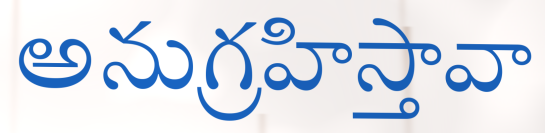
అనుగ్రహిస్తావా